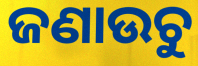
ଜଣାଉଚୁ